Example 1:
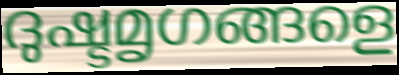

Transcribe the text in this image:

ദുഷ്ടമൃഗങ്ങളെ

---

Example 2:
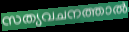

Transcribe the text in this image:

സത്യവചനത്താൽ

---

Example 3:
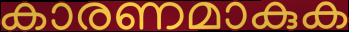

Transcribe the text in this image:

കാരണമാകുക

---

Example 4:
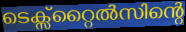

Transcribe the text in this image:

ടെക്സ്റ്റൈൽസിന്റെ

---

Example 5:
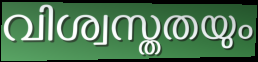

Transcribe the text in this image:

വിശ്വസ്തതയും